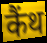
कैंथ